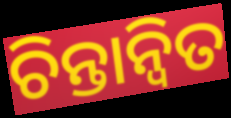
ଚିନ୍ତାନ୍ୱିତ